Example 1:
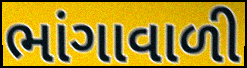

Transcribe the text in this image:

ભાંગાવાળી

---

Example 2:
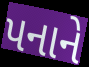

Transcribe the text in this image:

પનાને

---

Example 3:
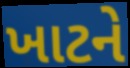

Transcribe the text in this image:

ખાટને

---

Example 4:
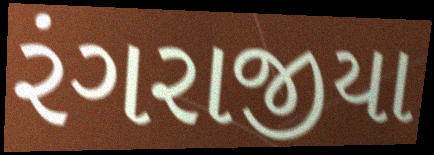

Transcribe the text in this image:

રંગરાજીયા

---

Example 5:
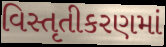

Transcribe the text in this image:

વિસ્તૃતીકરણમાં